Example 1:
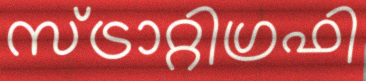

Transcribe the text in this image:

സ്ട്രാറ്റിഗ്രഫി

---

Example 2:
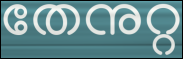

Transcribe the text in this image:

തേനുറ്റ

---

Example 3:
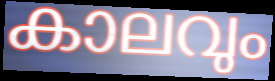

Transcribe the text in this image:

കാലവും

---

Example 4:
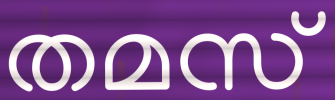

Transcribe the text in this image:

തമസ്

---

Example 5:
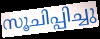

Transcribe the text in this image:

സൂചിപ്പിച്ചു